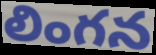
లింగన